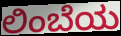
ಲಿಂಬೆಯ